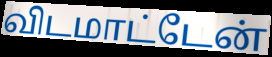
விடமாட்டேன்